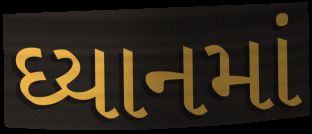
ઘ્યાનમાં